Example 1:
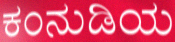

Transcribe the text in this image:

ಕಂನುಡಿಯ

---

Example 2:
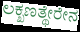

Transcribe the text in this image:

ಲಕ್ಖಣತ್ಥೇರೇನ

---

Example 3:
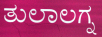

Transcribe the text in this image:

ತುಲಾಲಗ್ನ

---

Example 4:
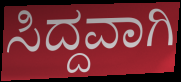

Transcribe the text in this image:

ಸಿದ್ದವಾಗಿ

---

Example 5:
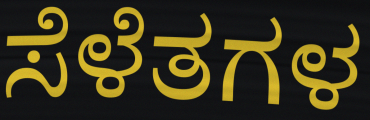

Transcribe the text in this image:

ಸೆಳೆತಗಳ